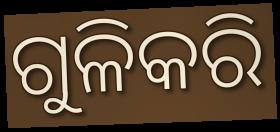
ଗୁଳିକରି